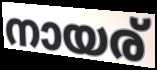
നായര്